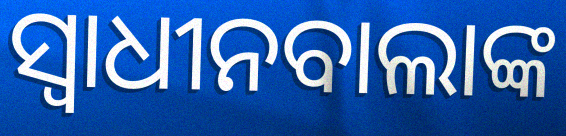
ସ୍ୱାଧୀନବାଲାଙ୍କ